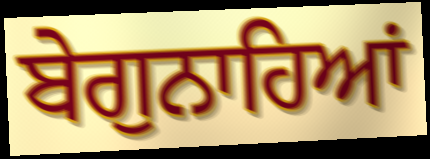
ਬੇਗੁਨਾਹਿਆਂ